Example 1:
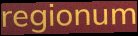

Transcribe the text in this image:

regionum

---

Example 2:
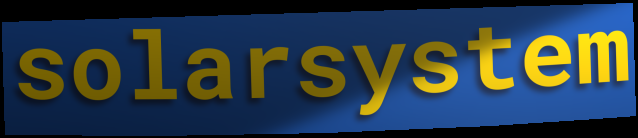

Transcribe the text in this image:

solarsystem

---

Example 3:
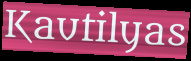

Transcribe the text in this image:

Kautilyas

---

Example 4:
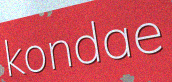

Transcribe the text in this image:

kondae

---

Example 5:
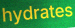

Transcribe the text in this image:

hydrates